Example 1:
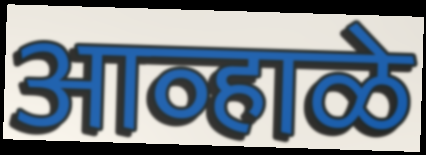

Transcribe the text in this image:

आव्हाळे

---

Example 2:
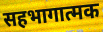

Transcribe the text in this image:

सहभागात्मक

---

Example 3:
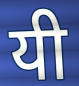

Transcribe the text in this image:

यी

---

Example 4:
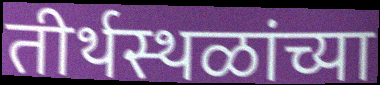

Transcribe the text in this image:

तीर्थस्थळांच्या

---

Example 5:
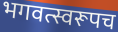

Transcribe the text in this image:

भगवत्स्वरूपच